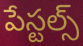
పేస్టల్స్